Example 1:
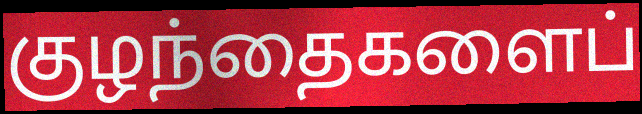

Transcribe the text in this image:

குழந்தைகளைப்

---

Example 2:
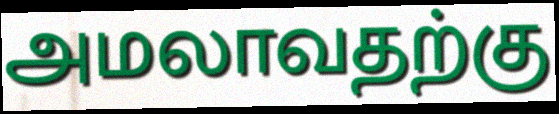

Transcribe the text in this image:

அமலாவதற்கு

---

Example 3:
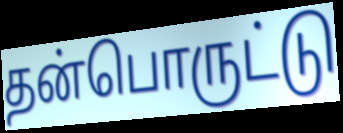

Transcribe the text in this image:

தன்பொருட்டு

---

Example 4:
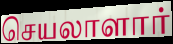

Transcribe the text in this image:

செயலாளார்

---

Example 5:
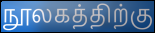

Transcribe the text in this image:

நூலகத்திற்கு